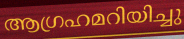
ആഗ്രഹമറിയിച്ചു